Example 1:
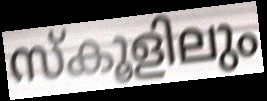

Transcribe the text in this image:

സ്കൂളിലും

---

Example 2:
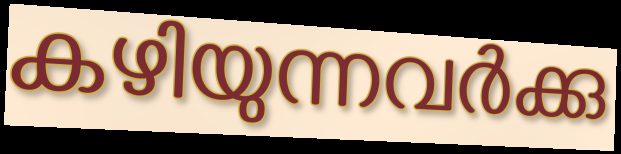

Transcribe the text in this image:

കഴിയുന്നവർക്കു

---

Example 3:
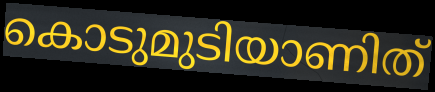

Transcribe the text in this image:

കൊടുമുടിയാണിത്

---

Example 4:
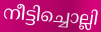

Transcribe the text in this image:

നീട്ടിച്ചൊല്ലി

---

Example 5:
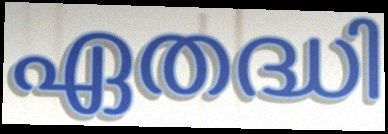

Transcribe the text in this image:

ഏതദ്ധി